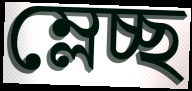
ম্লেচ্ছ